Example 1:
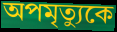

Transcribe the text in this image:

অপমৃত্যুকে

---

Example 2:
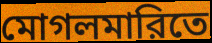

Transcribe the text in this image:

মোগলমারিতে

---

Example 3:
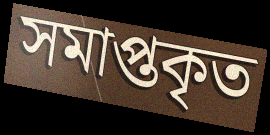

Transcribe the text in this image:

সমাপ্তকৃত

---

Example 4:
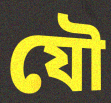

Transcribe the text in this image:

যৌ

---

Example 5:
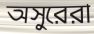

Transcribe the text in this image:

অসুরেরা